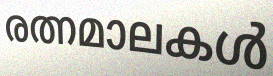
രത്നമാലകൾ